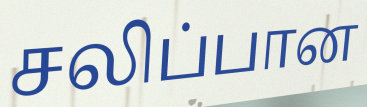
சலிப்பான